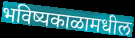
भविष्यकाळामधील